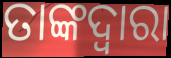
ତାଙ୍କଦ୍ୱାରା